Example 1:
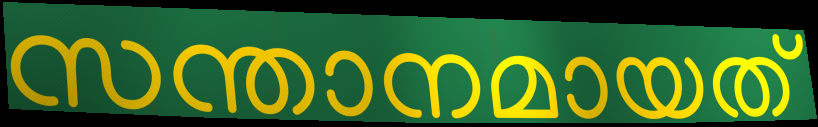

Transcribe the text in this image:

സന്താനമായത്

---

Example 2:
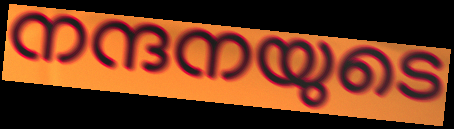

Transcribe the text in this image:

നന്ദനയുടെ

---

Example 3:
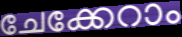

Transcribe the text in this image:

ചേക്കേറാം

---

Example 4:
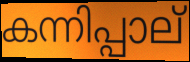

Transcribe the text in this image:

കന്നിപ്പാല്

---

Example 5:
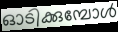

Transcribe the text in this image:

ഓടിക്കുമ്പോൾ